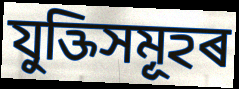
যুক্তিসমূহৰ